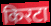
किरटा